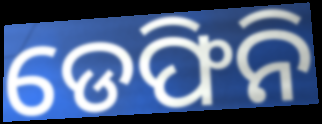
ଡେଫିନି